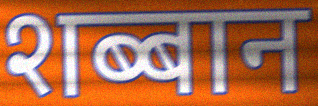
शब्बान